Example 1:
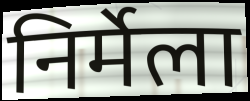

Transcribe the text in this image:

निर्मेला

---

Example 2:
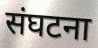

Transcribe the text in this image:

संघटना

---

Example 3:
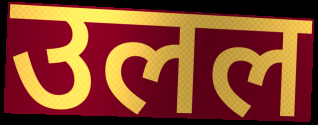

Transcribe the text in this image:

उलल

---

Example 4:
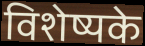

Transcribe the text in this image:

विशेष्यके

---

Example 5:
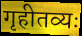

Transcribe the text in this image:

गृहीतव्यः